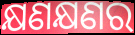
କ୍ଷଣକ୍ଷଣର